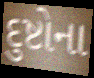
દુષ્ટોના